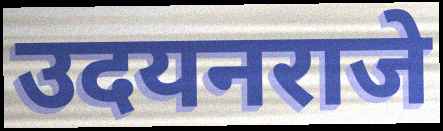
उदयनराजे